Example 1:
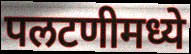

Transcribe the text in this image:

पलटणीमध्ये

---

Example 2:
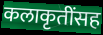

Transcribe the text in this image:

कलाकृतींसह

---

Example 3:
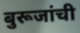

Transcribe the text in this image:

बुरूजांची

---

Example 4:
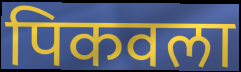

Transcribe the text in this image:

पिकवला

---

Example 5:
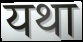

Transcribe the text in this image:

यथा